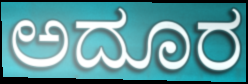
ಅದೂರ